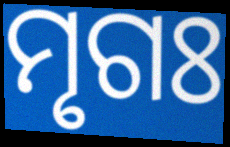
ମୃଗଃ